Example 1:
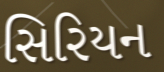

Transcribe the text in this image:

સિરિયન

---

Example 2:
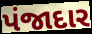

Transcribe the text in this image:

પંજાદાર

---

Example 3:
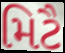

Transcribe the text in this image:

મિટૈ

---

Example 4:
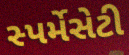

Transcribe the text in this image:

સ્પર્મેસેટી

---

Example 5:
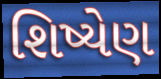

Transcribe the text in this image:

શિષ્યેણ